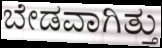
ಬೇಡವಾಗಿತ್ತು